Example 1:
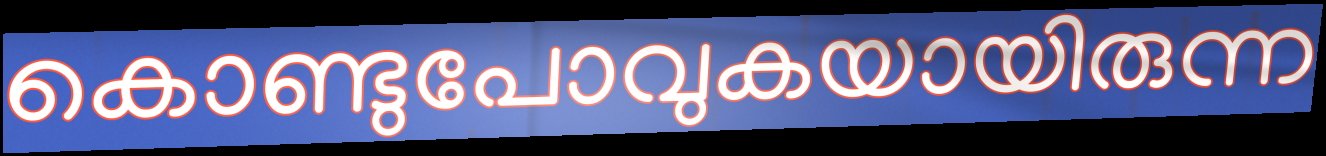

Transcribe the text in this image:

കൊണ്ടുപോവുകയായിരുന്ന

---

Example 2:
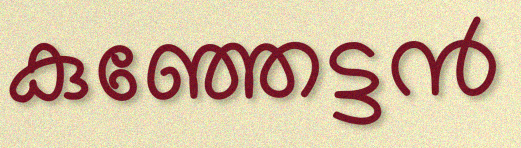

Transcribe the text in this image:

കുഞ്ഞേട്ടൻ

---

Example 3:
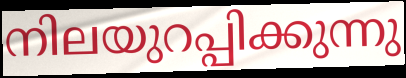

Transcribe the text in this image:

നിലയുറപ്പിക്കുന്നു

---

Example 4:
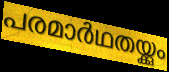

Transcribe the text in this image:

പരമാർഥതയ്ക്കും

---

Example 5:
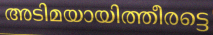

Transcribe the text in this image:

അടിമയായിത്തീരട്ടെ